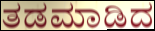
ತಡಮಾಡಿದ